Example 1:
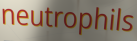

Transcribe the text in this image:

neutrophils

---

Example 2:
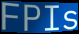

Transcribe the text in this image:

FPIs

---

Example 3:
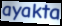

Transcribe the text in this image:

ayakta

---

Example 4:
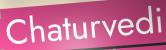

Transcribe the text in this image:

Chaturvedi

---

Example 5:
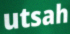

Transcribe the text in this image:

utsah